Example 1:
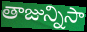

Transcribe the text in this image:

తాజున్నిసా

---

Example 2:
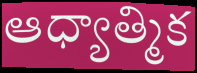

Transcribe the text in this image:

ఆధ్యాత్మిక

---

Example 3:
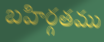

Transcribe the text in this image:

బహిర్గతము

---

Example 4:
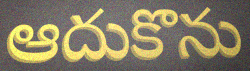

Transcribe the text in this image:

ఆదుకొను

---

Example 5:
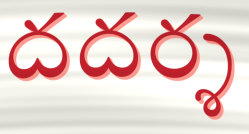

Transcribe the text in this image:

దదర్శ